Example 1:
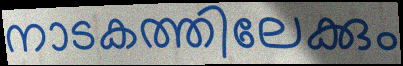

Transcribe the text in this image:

നാടകത്തിലേക്കും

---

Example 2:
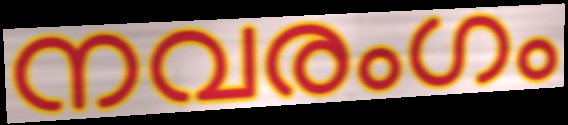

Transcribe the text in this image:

നവരംഗം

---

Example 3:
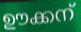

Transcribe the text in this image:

ഊക്കന്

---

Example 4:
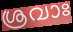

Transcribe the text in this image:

ശ്രവാഃ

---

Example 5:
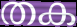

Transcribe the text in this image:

തക